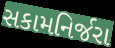
સકામનિર્જરા